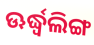
ଊର୍ଦ୍ଧ୍ୱଲିଙ୍ଗ